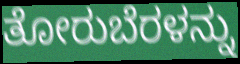
ತೋರುಬೆರಳನ್ನು